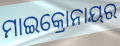
ମାଇକ୍ରୋନାୟର